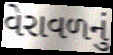
વેરાવળનું